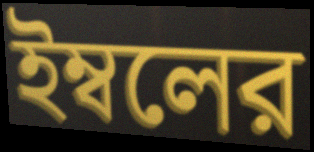
ইম্বলের